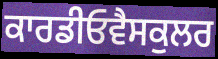
ਕਾਰਡੀਓਵੈਸਕੁਲਰ